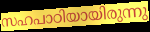
സഹപാഠിയായിരുന്നു